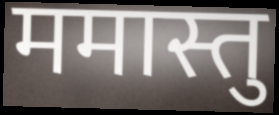
ममास्तु